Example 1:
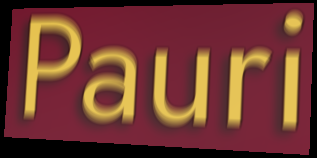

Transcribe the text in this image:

Pauri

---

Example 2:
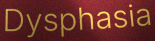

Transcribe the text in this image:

Dysphasia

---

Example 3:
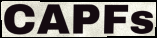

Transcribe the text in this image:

CAPFs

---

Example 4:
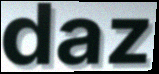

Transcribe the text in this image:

daz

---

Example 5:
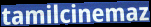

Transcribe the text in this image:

tamilcinemaz